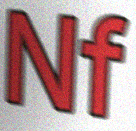
Nf